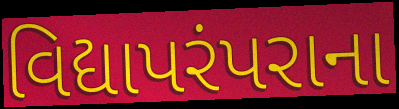
વિદ્યાપરંપરાના